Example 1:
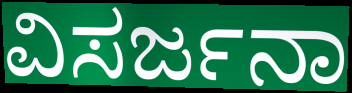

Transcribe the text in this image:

ವಿಸರ್ಜನಾ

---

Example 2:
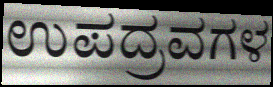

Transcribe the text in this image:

ಉಪದ್ರವಗಳ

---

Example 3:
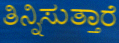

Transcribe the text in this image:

ತಿನ್ನಿಸುತ್ತಾರೆ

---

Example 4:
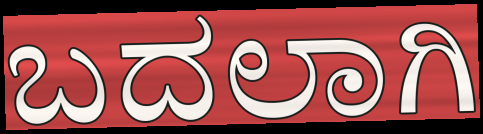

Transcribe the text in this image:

ಬದಲಾಗಿ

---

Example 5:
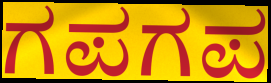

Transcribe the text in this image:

ಗಪಗಪ